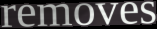
removes